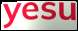
yesu